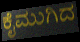
ಕೈಮುಗಿದ